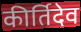
कीर्तिदेव